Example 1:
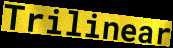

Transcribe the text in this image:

Trilinear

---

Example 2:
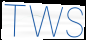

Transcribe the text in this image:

TWS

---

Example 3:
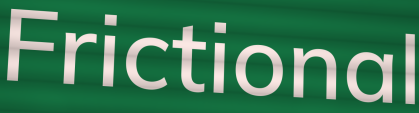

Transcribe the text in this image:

Frictional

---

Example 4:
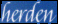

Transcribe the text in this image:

herden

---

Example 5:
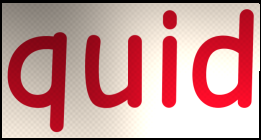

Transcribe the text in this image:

quid